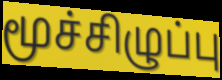
மூச்சிழுப்பு